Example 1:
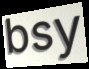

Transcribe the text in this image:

bsy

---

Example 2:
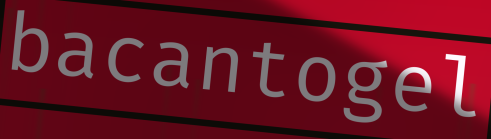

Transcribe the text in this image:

bacantogel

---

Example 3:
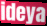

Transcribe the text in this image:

ideya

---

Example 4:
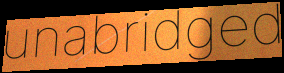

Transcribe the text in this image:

unabridged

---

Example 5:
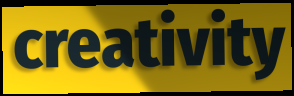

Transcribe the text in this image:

creativity